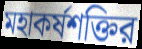
মহাকর্ষশক্তির